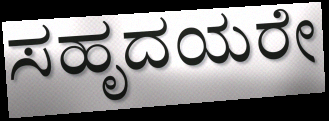
ಸಹೃದಯರೇ